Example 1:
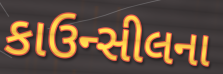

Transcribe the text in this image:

કાઉન્સીલના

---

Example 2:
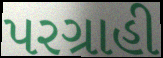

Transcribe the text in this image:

પરગ્રાહી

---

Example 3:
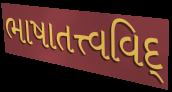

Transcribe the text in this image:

ભાષાતત્ત્વવિદ્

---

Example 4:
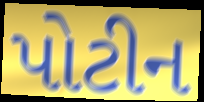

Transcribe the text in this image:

પોટીન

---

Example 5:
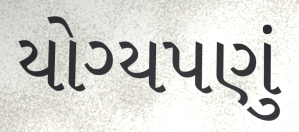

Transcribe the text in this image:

યોગ્યપણું